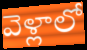
వెళ్లాలో